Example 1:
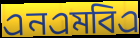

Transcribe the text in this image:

এনএমবিএ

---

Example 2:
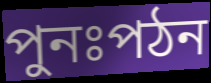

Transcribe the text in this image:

পুনঃপঠন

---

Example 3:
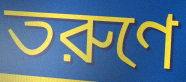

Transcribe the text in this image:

তরুণে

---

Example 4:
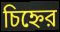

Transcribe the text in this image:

চিহ্নের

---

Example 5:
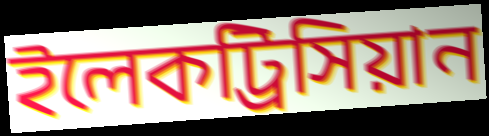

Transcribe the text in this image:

ইলেকট্রিসিয়ান